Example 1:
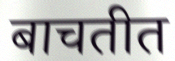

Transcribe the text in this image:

बाचतीत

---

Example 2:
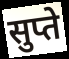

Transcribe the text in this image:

सुप्ते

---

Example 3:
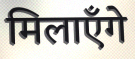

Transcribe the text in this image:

मिलाएँगे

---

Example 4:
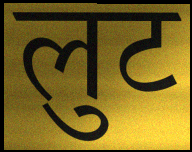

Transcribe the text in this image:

लुट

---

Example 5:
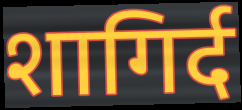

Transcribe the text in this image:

शागिर्द